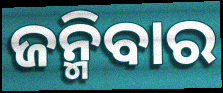
ଜନ୍ମିବାର